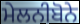
ਮੇਲਨੀਬੋਨੇ